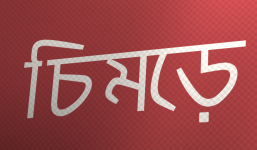
চিমড়ে